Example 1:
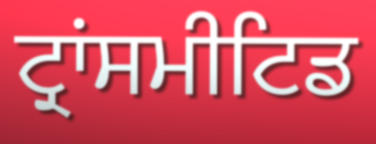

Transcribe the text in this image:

ਟ੍ਰਾਂਸਮੀਟਿਡ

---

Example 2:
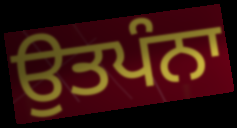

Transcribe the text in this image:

ਉਤਪੰਨਾ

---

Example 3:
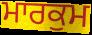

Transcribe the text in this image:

ਮਾਰਕੁਮ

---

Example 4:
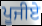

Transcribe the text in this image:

ਪੂਜੀਏ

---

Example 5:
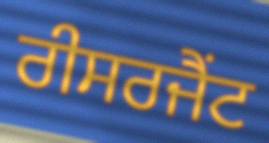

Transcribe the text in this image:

ਰੀਸਰਜੈਂਟ